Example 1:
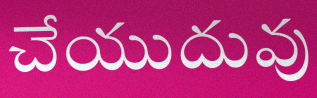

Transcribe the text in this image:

చేయుదువు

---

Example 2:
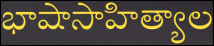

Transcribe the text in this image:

భాషాసాహిత్యాల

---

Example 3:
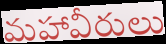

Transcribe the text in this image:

మహావీరులు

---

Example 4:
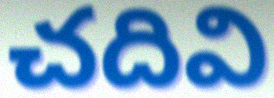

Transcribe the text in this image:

చదివి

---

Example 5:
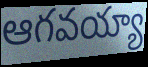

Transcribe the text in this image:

ఆగవయ్యా